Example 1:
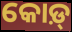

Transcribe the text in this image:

କୋଡ଼୍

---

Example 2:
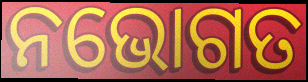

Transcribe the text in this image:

ନଭୋଗତ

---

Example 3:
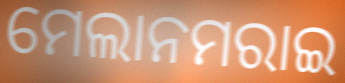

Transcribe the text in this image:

ମେଲାନମରାଇ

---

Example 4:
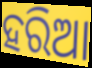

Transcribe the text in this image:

ହରିଆ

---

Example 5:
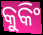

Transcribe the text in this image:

କୁକିଂ